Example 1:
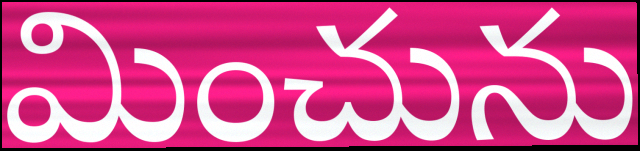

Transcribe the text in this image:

మించును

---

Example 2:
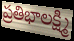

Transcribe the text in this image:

ప్రతిభాలక్ష్మి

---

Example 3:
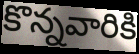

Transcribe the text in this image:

కొన్నవారికి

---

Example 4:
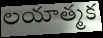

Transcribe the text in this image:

లయాత్మక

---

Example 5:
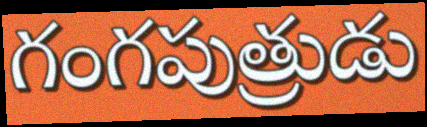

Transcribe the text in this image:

గంగపుత్రుడు